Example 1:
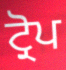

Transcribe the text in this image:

ਟ੍ਰੋਪ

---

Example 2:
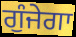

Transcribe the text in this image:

ਗੁੰਜੇਗਾ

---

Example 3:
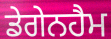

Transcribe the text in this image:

ਡੇਗੇਨਹੈਮ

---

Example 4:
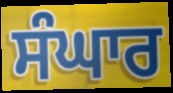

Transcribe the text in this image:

ਸੰਘਾਰ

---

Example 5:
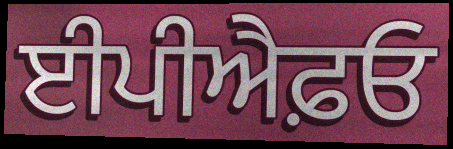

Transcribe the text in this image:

ਈਪੀਐਫ਼ਓ